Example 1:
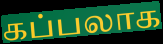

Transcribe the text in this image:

கப்பலாக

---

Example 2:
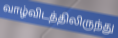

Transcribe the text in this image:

வாழ்விடத்திலிருந்து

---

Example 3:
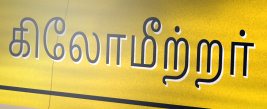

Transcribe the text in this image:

கிலோமீற்றர்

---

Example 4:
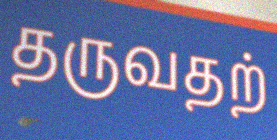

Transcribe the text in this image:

தருவதற்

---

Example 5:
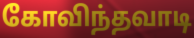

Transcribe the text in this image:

கோவிந்தவாடி